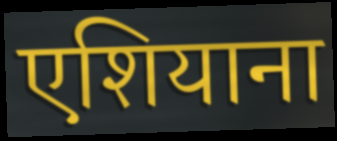
एशियाना